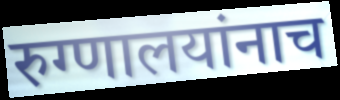
रुग्णालयांनाच